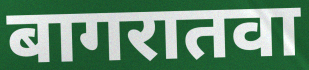
बागरातवा